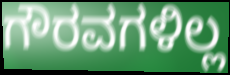
ಗೌರವಗಳಿಲ್ಲ